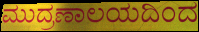
ಮುದ್ರಣಾಲಯದಿಂದ